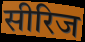
सीरिज